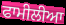
ਫਾਮੀਲੀਆ